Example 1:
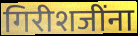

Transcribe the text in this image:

गिरीशजींना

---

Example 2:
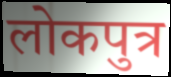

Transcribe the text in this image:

लोकपुत्र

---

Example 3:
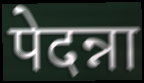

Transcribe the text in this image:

पेदन्ना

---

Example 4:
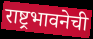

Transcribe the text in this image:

राष्ट्रभावनेची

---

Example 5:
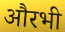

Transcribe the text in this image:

औरभी